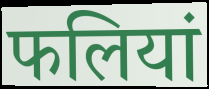
फलियां